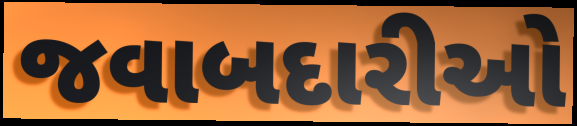
જવાબદારીઓ